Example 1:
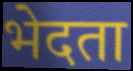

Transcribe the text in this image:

भेदता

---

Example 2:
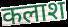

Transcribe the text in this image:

कलाश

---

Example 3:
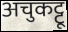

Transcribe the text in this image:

अचुकट्टू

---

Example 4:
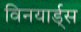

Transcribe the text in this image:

विनयार्ड्स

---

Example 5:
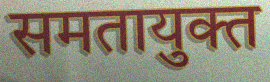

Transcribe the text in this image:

समतायुक्त